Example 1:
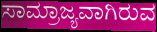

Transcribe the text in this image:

ಸಾಮ್ರಾಜ್ಯವಾಗಿರುವ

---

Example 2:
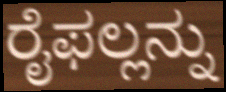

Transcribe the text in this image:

ರೈಫಲ್ಲನ್ನು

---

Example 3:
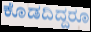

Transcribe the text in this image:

ಕೊಡದಿದ್ದರೂ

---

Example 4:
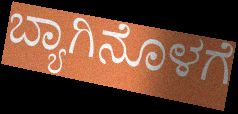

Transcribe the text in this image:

ಬ್ಯಾಗಿನೊಳಗೆ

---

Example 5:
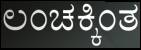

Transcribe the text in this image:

ಲಂಚಕ್ಕಿಂತ